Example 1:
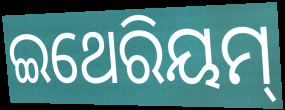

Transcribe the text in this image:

ଇଥେରିୟମ୍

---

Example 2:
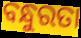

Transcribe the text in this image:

ବନ୍ଧୁରତା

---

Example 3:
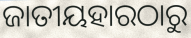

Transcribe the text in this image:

ଜାତୀୟହାରଠାରୁ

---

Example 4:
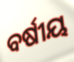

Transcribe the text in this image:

ବର୍ଷୀୟ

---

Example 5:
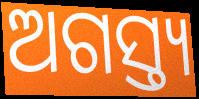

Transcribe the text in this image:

ଅଗସ୍ତ୍ୟ